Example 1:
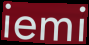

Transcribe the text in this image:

iemi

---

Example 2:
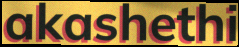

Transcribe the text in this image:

akashethi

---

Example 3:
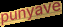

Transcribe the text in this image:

punyave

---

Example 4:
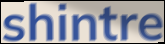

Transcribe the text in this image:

shintre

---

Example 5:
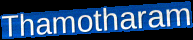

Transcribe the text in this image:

Thamotharam